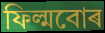
ফিল্মবোৰ